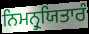
ਨਿਮਨ੍ਤ੍ਰਯਿਤਾਰੰ